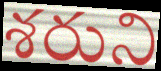
శరుని